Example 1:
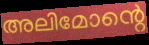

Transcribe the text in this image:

അലിമോന്റെ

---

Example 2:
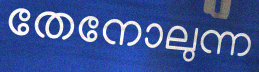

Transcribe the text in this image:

തേനോലുന്ന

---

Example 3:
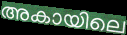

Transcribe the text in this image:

അകായിലെ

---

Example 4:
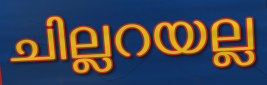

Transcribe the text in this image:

ചില്ലറയല്ല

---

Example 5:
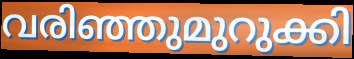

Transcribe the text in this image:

വരിഞ്ഞുമുറുക്കി